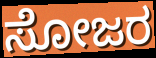
ಸೋಜರ